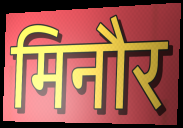
मिनौर